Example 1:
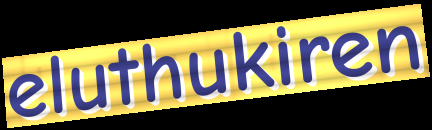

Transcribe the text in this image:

eluthukiren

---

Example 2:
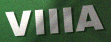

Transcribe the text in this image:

VIIIA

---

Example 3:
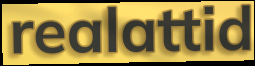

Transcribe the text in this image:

realattid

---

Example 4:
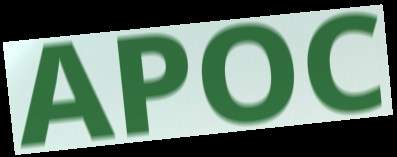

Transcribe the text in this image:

APOC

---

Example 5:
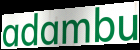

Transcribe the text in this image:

adambu